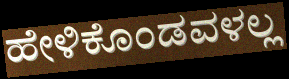
ಹೇಳಿಕೊಂಡವಳಲ್ಲ